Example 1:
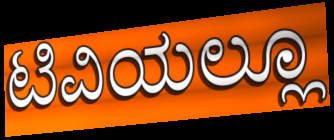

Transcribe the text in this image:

ಟಿವಿಯಲ್ಲೂ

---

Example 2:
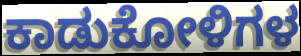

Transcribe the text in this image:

ಕಾಡುಕೋಳಿಗಳ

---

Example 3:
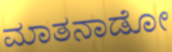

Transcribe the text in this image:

ಮಾತನಾಡೋ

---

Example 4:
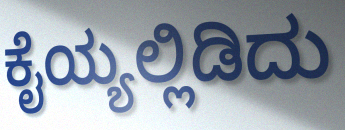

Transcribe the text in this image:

ಕೈಯ್ಯಲ್ಲಿಡಿದು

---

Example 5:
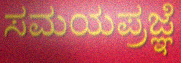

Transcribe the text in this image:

ಸಮಯಪ್ರಜ್ಞೆ